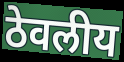
ठेवलीय